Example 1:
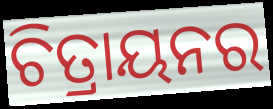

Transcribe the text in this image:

ଚିତ୍ରାୟନର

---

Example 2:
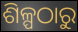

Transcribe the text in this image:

ଶିଳ୍ପଠାରୁ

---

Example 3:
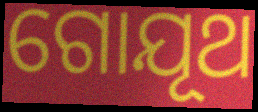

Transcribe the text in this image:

ଗୋଯୂଥ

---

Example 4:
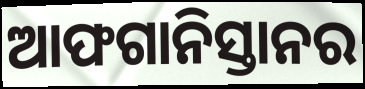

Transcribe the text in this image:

ଆଫଗାନିସ୍ତାନର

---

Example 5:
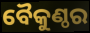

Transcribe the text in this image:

ବୈକୁଣ୍ଠର